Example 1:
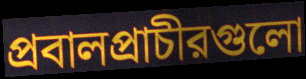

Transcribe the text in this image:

প্রবালপ্রাচীরগুলো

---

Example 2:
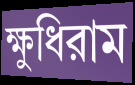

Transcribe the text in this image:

ক্ষুধিরাম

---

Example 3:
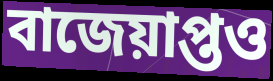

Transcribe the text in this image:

বাজেয়াপ্তও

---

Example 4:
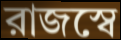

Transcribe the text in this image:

রাজস্বে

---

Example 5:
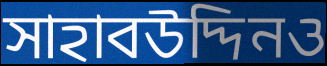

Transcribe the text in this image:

সাহাবউদ্দিনও